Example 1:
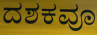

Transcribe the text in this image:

ದಶಕವೂ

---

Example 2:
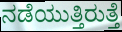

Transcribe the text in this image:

ನಡೆಯುತ್ತಿರುತ್ತೆ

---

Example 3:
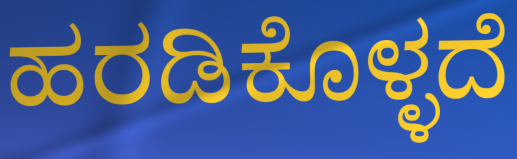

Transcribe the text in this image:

ಹರಡಿಕೊಳ್ಳದೆ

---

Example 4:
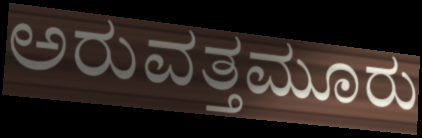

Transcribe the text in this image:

ಅರುವತ್ತಮೂರು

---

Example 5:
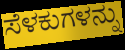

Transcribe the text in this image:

ಸೆಳಕುಗಳನ್ನು